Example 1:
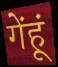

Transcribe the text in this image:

गेंहूं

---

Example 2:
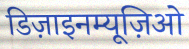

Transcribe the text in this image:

डिज़ाइनम्यूज़िओ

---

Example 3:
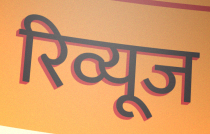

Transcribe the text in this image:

रिव्‍यूज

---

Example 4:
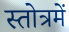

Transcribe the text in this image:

स्तोत्रमें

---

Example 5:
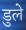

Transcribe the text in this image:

डुले